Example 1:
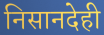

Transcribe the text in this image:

निसानदेही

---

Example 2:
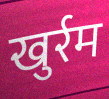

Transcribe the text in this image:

खुर्रम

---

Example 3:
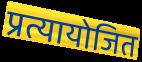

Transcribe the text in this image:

प्रत्यायोजित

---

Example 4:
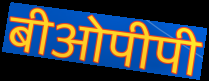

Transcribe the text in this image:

बीओपीपी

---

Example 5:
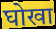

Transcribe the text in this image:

घोखा